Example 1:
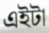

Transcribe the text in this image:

এইটা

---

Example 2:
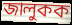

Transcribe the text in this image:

জালুকক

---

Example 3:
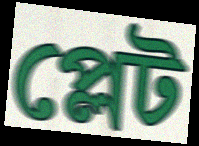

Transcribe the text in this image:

প্লেট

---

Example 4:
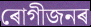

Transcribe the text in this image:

ৰোগীজনৰ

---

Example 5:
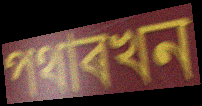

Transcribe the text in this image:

পথাৰখন